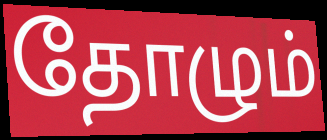
தோழும்